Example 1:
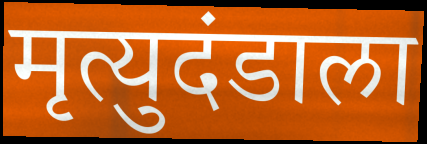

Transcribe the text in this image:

मृत्युदंडाला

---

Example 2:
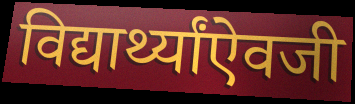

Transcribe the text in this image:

विद्यार्थ्यांऐवजी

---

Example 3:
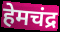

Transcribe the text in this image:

हेमचंद्र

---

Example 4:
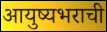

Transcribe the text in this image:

आयुष्यभराची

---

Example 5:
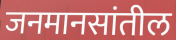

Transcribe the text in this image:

जनमानसांतील